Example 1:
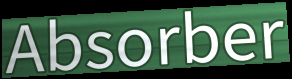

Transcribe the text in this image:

Absorber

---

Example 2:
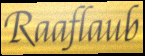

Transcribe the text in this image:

Raaflaub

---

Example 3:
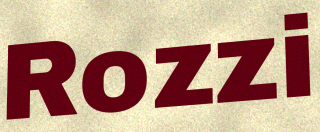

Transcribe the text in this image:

Rozzi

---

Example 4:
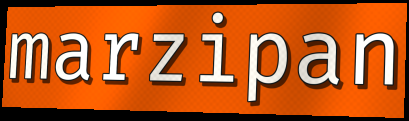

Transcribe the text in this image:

marzipan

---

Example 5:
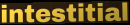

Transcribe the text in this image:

intestitial